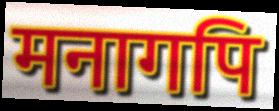
मनागपि